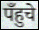
पँहुचे